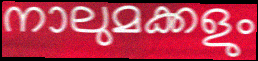
നാലുമക്കളും